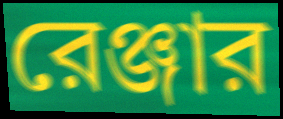
রেঞ্জার